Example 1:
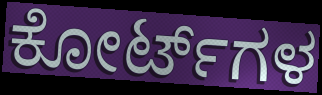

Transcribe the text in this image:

ಕೋರ್ಟ್‌ಗಳ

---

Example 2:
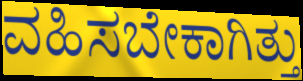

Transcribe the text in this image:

ವಹಿಸಬೇಕಾಗಿತ್ತು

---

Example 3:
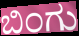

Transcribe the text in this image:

ಬಿಂಗು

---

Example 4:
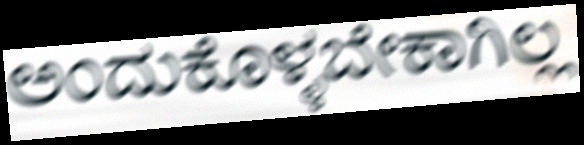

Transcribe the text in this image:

ಅಂದುಕೊಳ್ಳಬೇಕಾಗಿಲ್ಲ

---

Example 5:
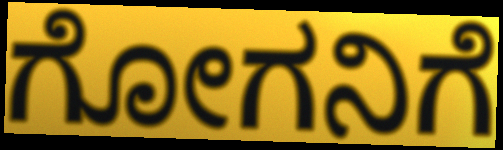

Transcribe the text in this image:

ಗೋಗನಿಗೆ